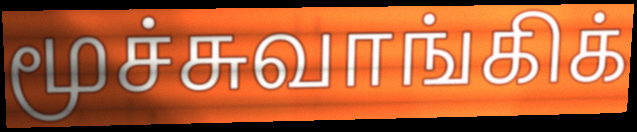
மூச்சுவாங்கிக்